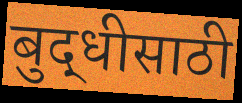
बुद्धीसाठी